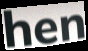
hen